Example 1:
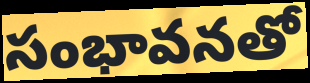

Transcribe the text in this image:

సంభావనతో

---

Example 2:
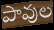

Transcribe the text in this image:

పావుల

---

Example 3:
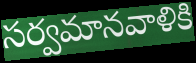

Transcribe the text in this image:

సర్వమానవాళికి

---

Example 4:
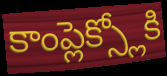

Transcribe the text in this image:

కాంప్లెక్స్లోకి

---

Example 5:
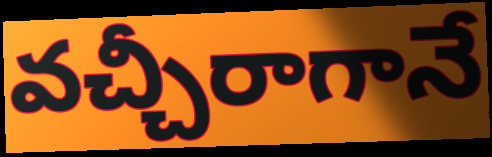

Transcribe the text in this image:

వచ్చీరాగానే